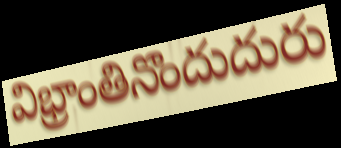
విభ్రాంతినొందుదురు